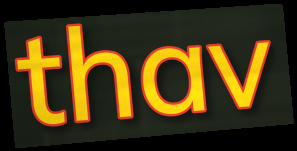
thav